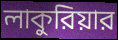
লাকুরিয়ার